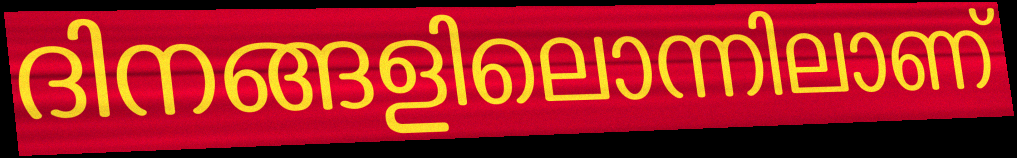
ദിനങ്ങളിലൊന്നിലാണ്